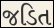
જડિત